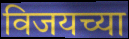
विजयच्या